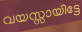
വയസ്സായിട്ടേ